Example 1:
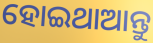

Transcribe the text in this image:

ହୋଇଥାଆନ୍ତୁ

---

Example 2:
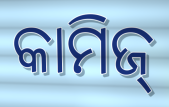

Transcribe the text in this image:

କାମିଜ୍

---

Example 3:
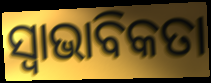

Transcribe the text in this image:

ସ୍ବାଭାବିକତା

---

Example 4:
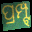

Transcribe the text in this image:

ପ୍ରମ୍ପ୍ଟ୍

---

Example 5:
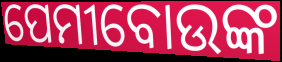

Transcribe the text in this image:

ପେମୀବୋଉଙ୍କ